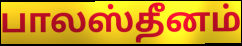
பாலஸ்தீனம்